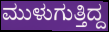
ಮುಳುಗುತ್ತಿದ್ದ